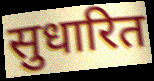
सुधारित